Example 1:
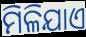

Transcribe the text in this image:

ମିଳିଯାଏ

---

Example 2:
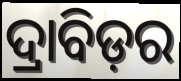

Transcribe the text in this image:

ଦ୍ରାବିଡ଼ର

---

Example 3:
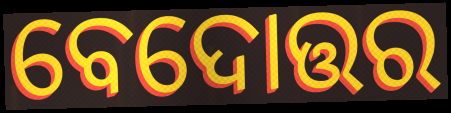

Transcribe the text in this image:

ବେଦୋତ୍ତର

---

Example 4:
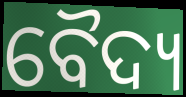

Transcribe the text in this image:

ବୈଦ୍ଯ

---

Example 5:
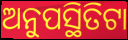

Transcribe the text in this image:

ଅନୁପସ୍ଥିତିଟା